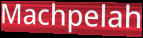
Machpelah